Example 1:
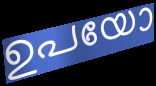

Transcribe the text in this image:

ഉപയോ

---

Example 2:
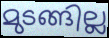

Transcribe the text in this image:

മുടങ്ങില്ല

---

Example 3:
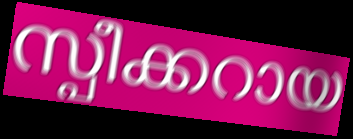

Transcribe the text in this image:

സ്പീക്കറായ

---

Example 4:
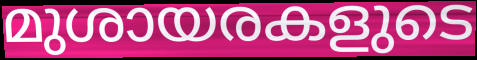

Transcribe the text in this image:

മുശായരകളുടെ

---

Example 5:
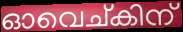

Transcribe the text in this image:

ഓവെച്കിന്